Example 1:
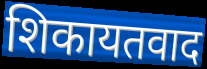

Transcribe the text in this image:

शिकायतवाद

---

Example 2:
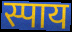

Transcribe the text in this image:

स्पाय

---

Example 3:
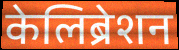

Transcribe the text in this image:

केलिब्रेशन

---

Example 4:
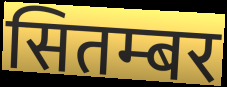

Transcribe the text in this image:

सितम्बर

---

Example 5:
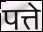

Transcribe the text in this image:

पत्ते